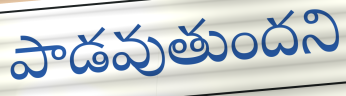
పాడవుతుందని